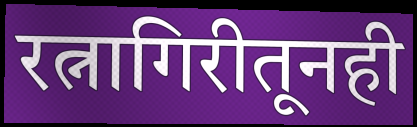
रत्नागिरीतूनही